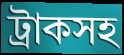
ট্রাকসহ